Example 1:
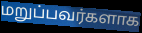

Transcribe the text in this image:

மறுப்பவர்களாக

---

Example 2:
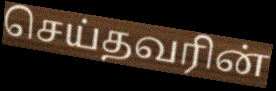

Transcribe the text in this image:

செய்தவரின்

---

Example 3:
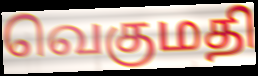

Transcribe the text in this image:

வெகுமதி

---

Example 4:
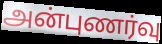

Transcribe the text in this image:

அன்புணர்வு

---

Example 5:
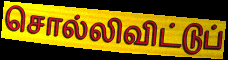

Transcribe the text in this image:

சொல்லிவிட்டுப்